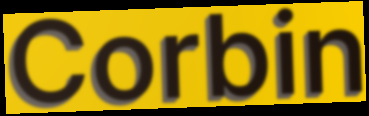
Corbin